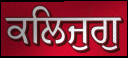
ਕਲਿਜੁਗੁ